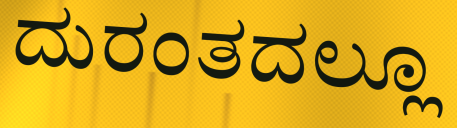
ದುರಂತದಲ್ಲೂ